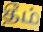
தீம்